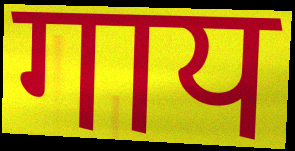
गाय